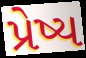
પ્રેષ્ય